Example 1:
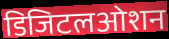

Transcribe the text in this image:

डिजिटलओशन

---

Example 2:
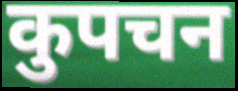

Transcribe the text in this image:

कुपचन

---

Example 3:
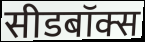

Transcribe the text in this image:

सीडबॉक्स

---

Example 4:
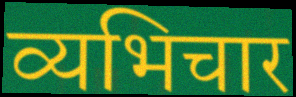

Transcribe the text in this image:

व्यभिचार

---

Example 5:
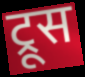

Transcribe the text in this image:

ट्रूस